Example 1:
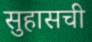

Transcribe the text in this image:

सुहासची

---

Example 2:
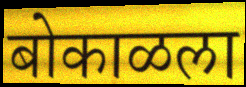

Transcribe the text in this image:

बोकाळला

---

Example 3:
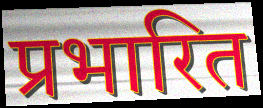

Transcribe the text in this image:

प्रभारित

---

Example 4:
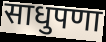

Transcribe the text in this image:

साधुपणा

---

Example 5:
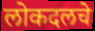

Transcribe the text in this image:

लोकदलचे